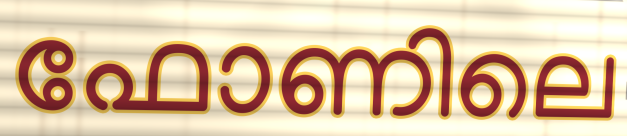
ഫോണിലെ